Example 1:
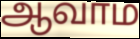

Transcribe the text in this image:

ஆவாம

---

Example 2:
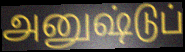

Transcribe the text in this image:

அனுஷ்டுப்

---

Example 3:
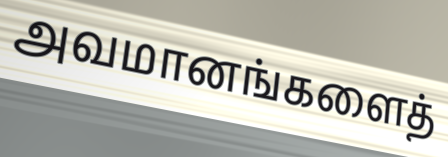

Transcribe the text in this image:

அவமானங்களைத்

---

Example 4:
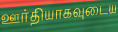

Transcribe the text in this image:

ஊர்தியாகவுடைய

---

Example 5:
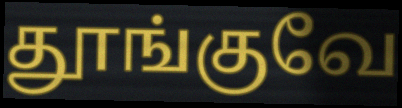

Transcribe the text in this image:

தூங்குவே